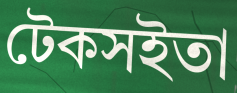
টেকসইতা